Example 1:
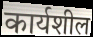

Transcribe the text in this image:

कार्यशील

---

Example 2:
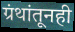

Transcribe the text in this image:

ग्रंथांतूनही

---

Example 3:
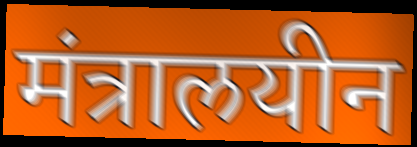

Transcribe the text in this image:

मंत्रालयीन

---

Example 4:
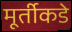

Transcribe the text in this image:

मूर्तीकडे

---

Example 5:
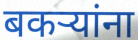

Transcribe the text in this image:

बकर्‍यांना